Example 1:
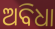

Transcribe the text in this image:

ଅବିଧା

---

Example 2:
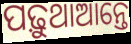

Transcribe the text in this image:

ପଢ଼ୁଥାଆନ୍ତେ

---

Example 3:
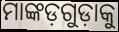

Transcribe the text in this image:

ମାଙ୍କଡ଼ଗୁଡ଼ାକୁ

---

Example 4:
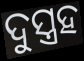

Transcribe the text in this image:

ଦୁସ୍ତ୍ରହ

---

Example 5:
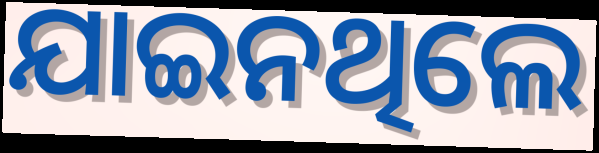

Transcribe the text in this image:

ଯାଇନଥିଲେ